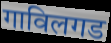
गाविलगड